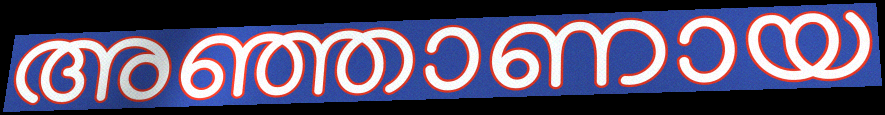
അഞ്ഞാണായ